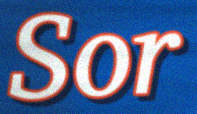
Sor